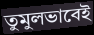
তুমুলভাবেই